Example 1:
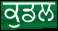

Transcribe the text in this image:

ਕੁਡਲ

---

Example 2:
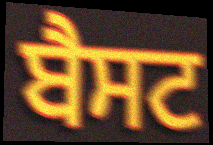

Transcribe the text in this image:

ਬੈਸਟ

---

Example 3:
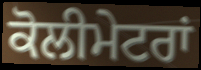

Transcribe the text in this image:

ਕੋਲੀਮੇਟਰਾਂ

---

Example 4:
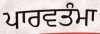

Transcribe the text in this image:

ਪਾਰਵਤੰਮਾ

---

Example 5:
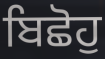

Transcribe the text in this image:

ਬਿਛੋਹੁ